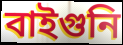
বাইগুনি